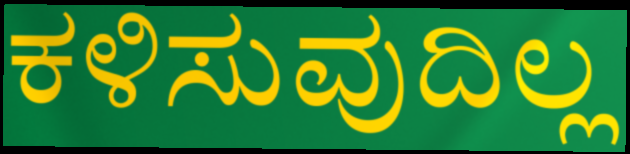
ಕಳಿಸುವುದಿಲ್ಲ